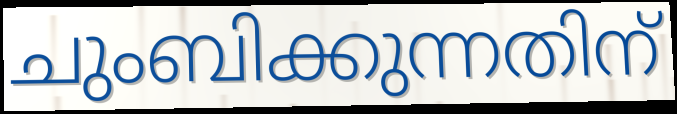
ചുംബിക്കുന്നതിന്